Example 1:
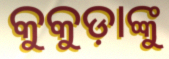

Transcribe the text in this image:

କୁକୁଡ଼ାଙ୍କୁ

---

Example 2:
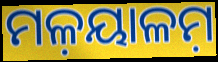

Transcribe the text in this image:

ମଳ଼ୟାଳମ଼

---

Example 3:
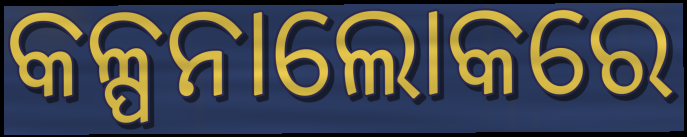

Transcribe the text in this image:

କଳ୍ପନାଲୋକରେ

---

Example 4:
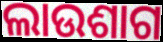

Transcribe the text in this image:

ଲାଉଶାଗ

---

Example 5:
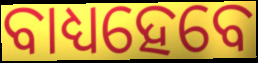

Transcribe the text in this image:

ବାଧ୍ୟହେବେ